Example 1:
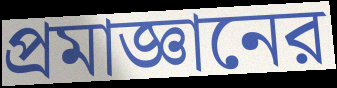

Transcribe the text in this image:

প্রমাজ্ঞানের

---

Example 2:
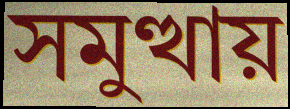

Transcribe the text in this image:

সমুত্থায়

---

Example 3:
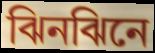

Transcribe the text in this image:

ঝিনঝিনে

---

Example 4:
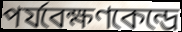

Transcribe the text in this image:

পর্যবেক্ষণকেন্দ্রে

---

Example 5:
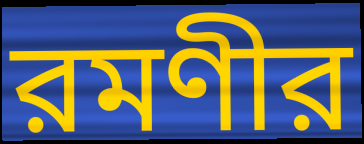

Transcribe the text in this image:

রমণীর